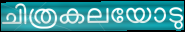
ചിത്രകലയോടു